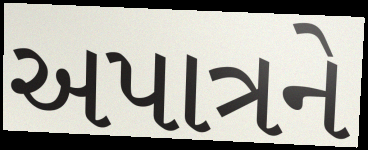
અપાત્રને